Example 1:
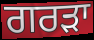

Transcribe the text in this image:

ਗਰੜਾ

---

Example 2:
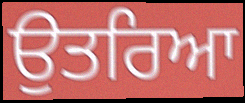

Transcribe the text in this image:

ਉਤਰਿਆ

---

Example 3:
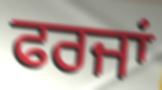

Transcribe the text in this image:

ਫਰਜਾਂ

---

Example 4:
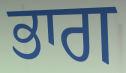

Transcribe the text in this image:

ਭਾਗ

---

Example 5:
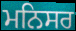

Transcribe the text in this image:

ਮਨਿਸਰ